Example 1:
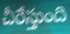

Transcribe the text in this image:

చీరేస్తుంది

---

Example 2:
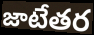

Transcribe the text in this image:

జాటేతర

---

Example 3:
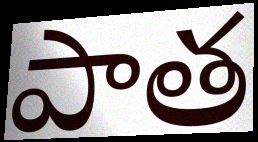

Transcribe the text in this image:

పాత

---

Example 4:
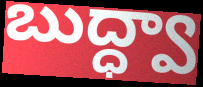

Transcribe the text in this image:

బుద్ధ్వా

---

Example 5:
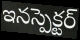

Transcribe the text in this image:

ఇనస్పెక్టర్